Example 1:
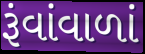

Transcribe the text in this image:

રૂંવાંવાળાં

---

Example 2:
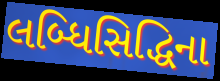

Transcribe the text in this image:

લબ્ધિસિદ્ધિના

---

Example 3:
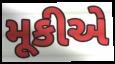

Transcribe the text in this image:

મૂકીએ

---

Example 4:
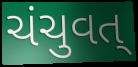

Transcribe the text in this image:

ચંચુવત્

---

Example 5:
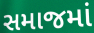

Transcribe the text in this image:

સમાજમાં